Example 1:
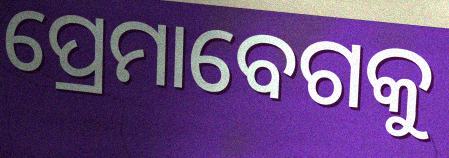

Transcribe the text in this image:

ପ୍ରେମାବେଗକୁ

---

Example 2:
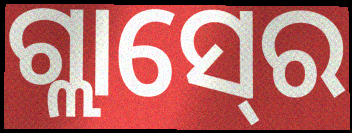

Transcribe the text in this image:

ଗ୍ଲାସ୍‍ରେ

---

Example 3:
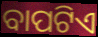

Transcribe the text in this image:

ବାପଟିଏ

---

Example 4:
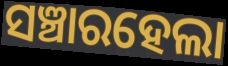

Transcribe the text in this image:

ସଞ୍ଚାରହେଲା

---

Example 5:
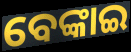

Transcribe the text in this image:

ବେଙ୍କାଇ